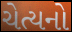
ચેત્યનો